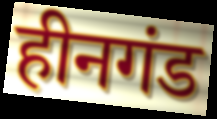
हीनगंड